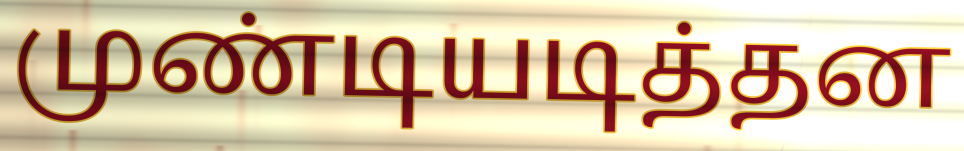
முண்டியடித்தன